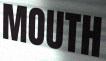
MOUTH